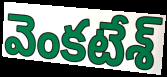
వెంకటేశ్